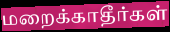
மறைக்காதீர்கள்